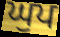
ਘੁਪ